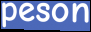
peson